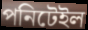
পনিটেইল